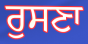
ਰੁਸਣਾ